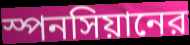
স্পনসিয়ানের